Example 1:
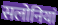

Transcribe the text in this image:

सलोनियां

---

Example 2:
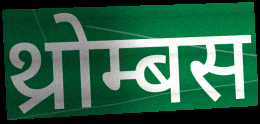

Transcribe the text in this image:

थ्रोम्बस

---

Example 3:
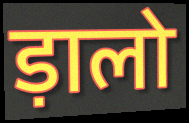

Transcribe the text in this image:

ड़ालो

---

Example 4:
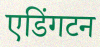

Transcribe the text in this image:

एडिंगटन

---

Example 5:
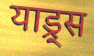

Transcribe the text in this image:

याड्र्स